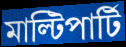
মাল্টিপার্টি